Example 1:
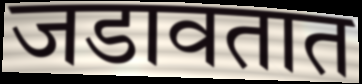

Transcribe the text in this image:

जडावतात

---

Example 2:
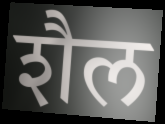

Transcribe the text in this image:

शैल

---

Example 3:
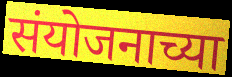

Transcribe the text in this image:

संयोजनाच्या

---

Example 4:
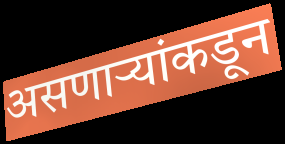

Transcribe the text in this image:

असणाऱ्यांकडून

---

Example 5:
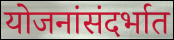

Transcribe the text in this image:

योजनांसंदर्भात